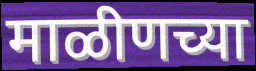
माळीणच्या